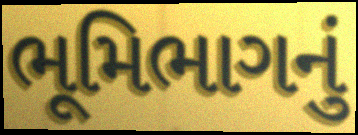
ભૂમિભાગનું